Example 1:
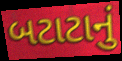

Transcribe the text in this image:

બટાટાનું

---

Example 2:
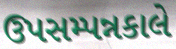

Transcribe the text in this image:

ઉપસમ્પન્નકાલે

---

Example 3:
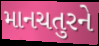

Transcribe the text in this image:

માનચતુરને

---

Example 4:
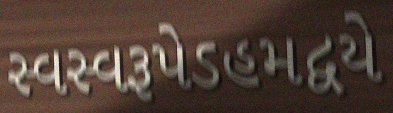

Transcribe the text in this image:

સ્વસ્વરૂપેઽહમદ્વયે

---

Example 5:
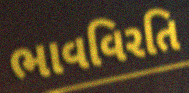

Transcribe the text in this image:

ભાવવિરતિ